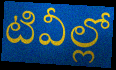
టివీల్లో